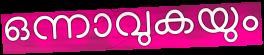
ഒന്നാവുകയും